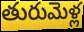
తురుమెళ్ల